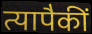
त्यापैकीं